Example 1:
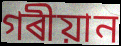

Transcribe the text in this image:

গৰীয়ান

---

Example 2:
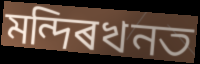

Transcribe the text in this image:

মন্দিৰখনত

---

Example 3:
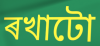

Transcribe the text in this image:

ৰখাটো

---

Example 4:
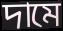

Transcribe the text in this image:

দামে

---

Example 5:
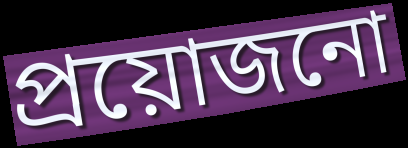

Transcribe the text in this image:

প্ৰয়োজনো